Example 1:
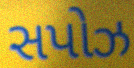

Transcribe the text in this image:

સપોઝ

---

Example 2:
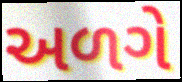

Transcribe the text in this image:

અળગે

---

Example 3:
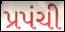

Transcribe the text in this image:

પ્રપંચી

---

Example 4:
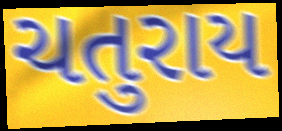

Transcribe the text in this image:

ચતુરાય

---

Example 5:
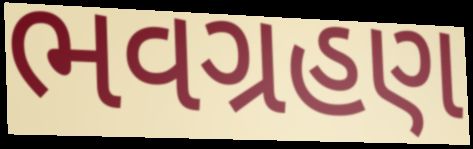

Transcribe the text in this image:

ભવગ્રહણ